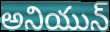
అనియున్